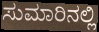
ಸುಮಾರಿನಲ್ಲಿ